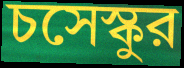
চসেস্কুর